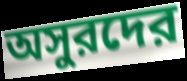
অসুরদের